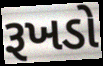
રૂખડો